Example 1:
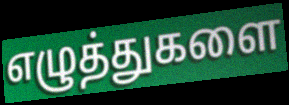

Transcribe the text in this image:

எழுத்துகளை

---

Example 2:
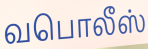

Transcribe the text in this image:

வபொலீஸ்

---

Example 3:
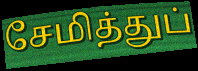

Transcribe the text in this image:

சேமித்துப்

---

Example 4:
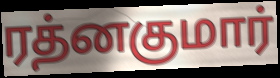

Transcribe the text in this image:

ரத்னகுமார்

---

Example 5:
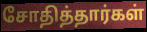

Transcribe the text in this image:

சோதித்தார்கள்